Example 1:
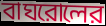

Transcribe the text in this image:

বাঘরোলের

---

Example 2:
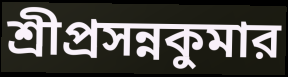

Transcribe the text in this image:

শ্রীপ্রসন্নকুমার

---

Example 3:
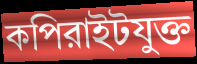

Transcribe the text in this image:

কপিরাইটযুক্ত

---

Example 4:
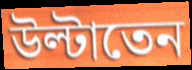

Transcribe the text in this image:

উল্টাতেন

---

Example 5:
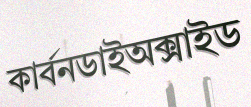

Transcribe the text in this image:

কার্বনডাইঅক্সাইড